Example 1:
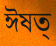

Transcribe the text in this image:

ঈষত্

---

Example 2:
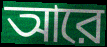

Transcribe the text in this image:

আরে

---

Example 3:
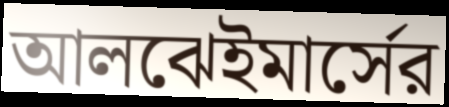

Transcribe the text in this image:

আলঝেইমার্সের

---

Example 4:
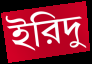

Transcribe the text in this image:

ইরিদু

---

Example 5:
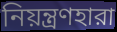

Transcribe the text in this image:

নিয়ন্ত্রণহারা